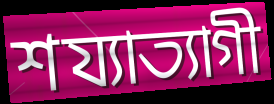
শয্যাত্যাগী